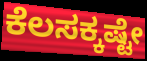
ಕೆಲಸಕ್ಕಷ್ಟೇ